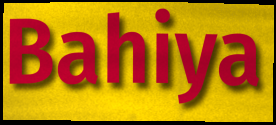
Bahiya